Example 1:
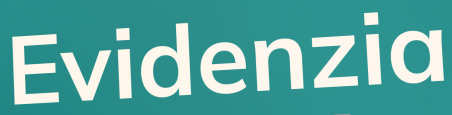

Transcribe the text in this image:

Evidenzia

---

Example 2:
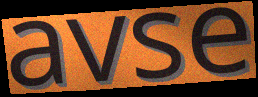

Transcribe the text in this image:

avse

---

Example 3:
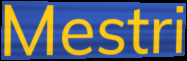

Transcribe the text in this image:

Mestri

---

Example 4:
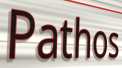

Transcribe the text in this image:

Pathos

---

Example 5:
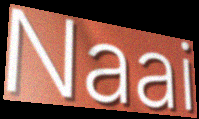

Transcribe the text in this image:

Naai